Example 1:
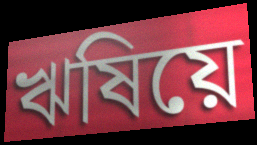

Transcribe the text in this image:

ঋষিয়ে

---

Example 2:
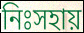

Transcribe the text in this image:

নিঃসহায়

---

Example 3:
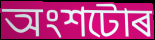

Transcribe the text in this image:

অংশটোৰ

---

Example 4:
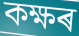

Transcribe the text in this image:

কক্ষৰ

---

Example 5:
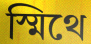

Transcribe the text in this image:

স্মিথে